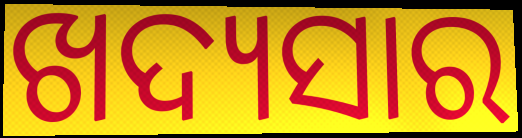
ଖଦ୍ୟସାର